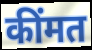
कींमत